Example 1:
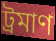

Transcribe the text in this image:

ট্রমাণ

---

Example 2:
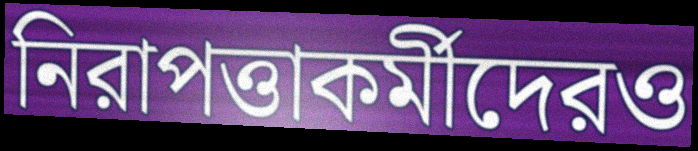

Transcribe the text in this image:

নিরাপত্তাকর্মীদেরও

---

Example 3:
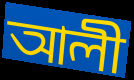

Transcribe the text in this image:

আলী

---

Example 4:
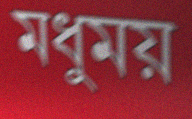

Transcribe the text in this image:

মধুময়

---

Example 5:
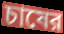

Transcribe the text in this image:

চাষের